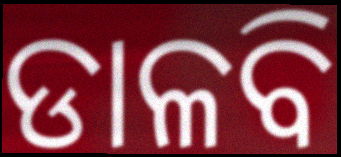
ଡାଳବି